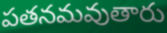
పతనమవుతారు